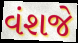
વંશજે